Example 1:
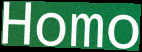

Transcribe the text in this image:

Homo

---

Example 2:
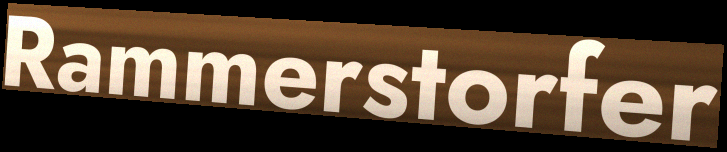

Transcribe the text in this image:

Rammerstorfer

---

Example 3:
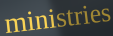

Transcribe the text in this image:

ministries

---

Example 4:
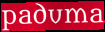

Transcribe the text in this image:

paduma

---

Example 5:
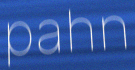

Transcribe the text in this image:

pahn